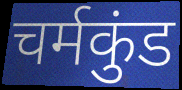
चर्मकुंड